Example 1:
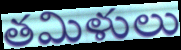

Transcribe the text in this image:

తమిళులు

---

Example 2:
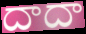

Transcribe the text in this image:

దాదా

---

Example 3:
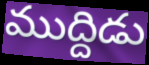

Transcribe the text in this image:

ముద్దిడు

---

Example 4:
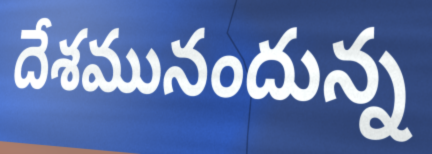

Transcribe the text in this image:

దేశమునందున్న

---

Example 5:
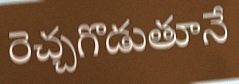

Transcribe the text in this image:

రెచ్చగొడుతూనే